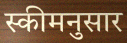
स्कीमनुसार